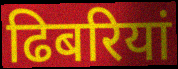
ढिबरियां